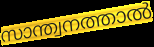
സാന്ത്വനത്താൽ